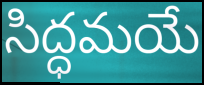
సిద్ధమయే